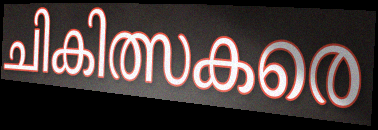
ചികിത്സകരെ